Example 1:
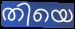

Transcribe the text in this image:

തിയെ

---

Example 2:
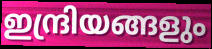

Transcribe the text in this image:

ഇന്ദ്രിയങ്ങളും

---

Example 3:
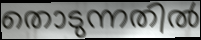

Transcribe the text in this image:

തൊടുന്നതിൽ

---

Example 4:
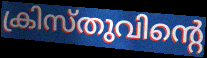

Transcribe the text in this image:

ക്രിസ്തുവിന്റെ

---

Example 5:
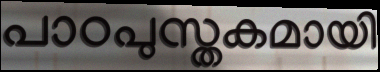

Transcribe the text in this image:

പാഠപുസ്തകമായി